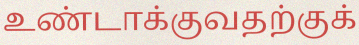
உண்டாக்குவதற்குக்